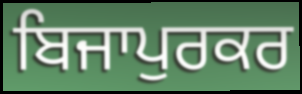
ਬਿਜਾਪੁਰਕਰ